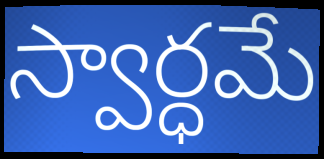
స్వార్ధమే